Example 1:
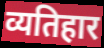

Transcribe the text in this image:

व्यतिहार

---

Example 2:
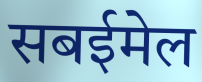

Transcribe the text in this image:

सबईमेल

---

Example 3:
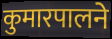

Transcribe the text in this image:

कुमारपालने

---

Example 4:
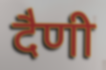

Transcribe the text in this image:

दैणी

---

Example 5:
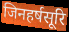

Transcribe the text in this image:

जिनहर्षसूरि